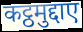
कट्ठमुद्दाए